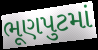
ભૂણપુટમાં